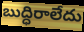
బుద్ధిరాలేదు